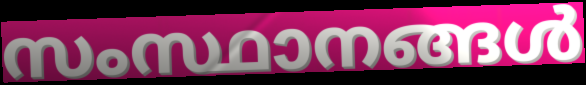
സംസ്ഥാനങ്ങൾ